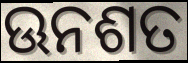
ଊନଶତ